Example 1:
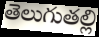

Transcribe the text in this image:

తెలుగుతల్లి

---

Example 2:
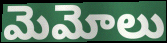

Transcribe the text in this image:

మెమోలు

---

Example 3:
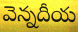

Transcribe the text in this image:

వెన్నదీయ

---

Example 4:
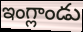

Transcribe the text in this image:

ఇంగ్లాండు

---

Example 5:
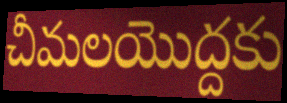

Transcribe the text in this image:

చీమలయొద్దకు